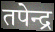
तपेन्द्र